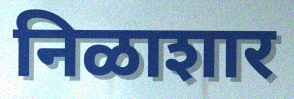
निळाशार